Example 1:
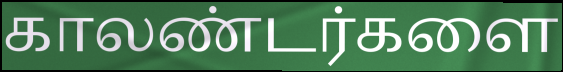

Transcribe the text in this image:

காலண்டர்களை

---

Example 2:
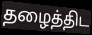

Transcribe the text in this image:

தழைத்திட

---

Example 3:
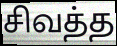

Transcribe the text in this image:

சிவத்த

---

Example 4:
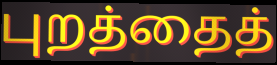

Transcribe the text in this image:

புறத்தைத்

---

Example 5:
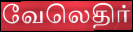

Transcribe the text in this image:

வேலெதிர்